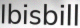
Ibisbill